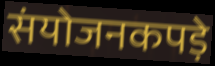
संयोजनकपड़े